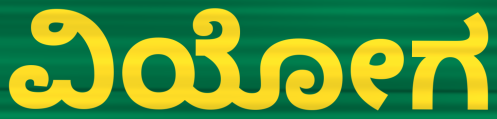
ವಿಯೋಗ